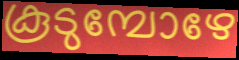
കൂടുമ്പോഴേ